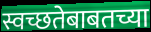
स्वच्छतेबाबतच्या